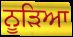
ਨੂੜਿਆ